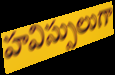
హవిస్సులుగా